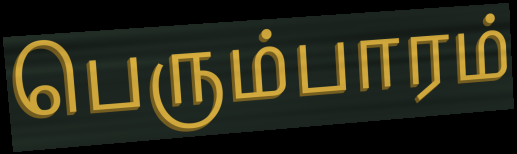
பெரும்பாரம்